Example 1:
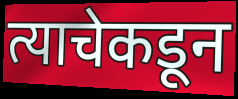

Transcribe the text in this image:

त्याचेकडून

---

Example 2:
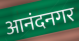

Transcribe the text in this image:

आनंदनगर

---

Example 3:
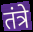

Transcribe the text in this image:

तंत्रे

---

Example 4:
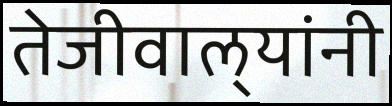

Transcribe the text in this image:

तेजीवाल्यांनी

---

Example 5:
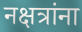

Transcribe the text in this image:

नक्षत्रांना